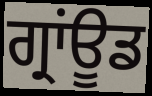
ਗ੍ਰਾਂਊਡ